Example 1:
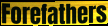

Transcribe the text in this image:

Forefathers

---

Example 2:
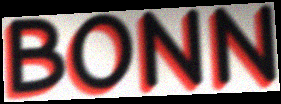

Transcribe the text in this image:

BONN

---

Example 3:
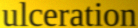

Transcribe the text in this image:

ulceration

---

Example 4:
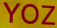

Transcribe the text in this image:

YOZ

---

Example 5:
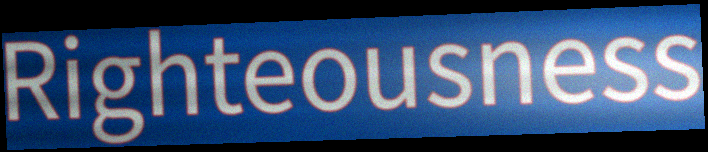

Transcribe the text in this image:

Righteousness